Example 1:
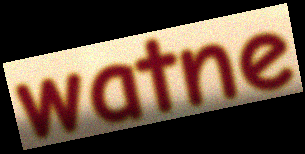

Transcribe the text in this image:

watne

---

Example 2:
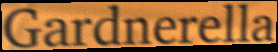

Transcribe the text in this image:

Gardnerella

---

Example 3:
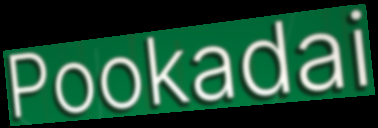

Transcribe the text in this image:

Pookadai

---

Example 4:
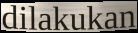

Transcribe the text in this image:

dilakukan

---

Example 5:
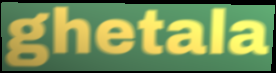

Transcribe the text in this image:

ghetala